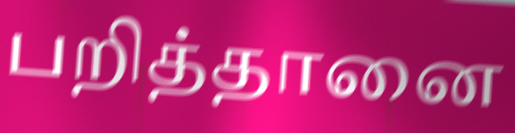
பறித்தானை